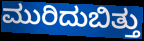
ಮುರಿದುಬಿತ್ತು